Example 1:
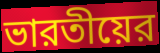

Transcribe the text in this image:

ভারতীয়ের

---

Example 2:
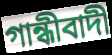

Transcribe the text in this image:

গান্ধীবাদী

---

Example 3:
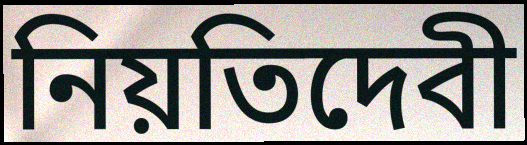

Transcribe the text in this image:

নিয়তিদেবী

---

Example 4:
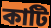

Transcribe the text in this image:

কাটি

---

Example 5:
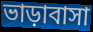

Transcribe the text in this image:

ভাড়াবাসা